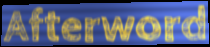
Afterword